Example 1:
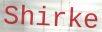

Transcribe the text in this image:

Shirke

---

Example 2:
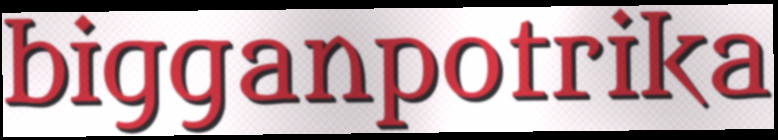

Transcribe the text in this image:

bigganpotrika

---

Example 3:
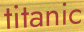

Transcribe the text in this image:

titanic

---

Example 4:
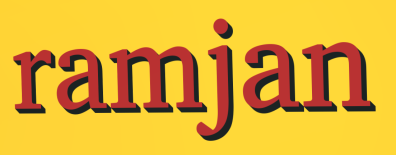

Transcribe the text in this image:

ramjan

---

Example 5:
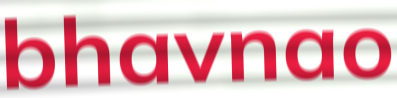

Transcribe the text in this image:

bhavnao